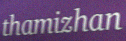
thamizhan